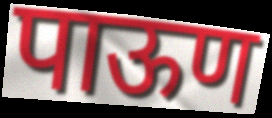
पाऊण